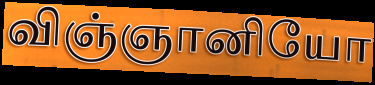
விஞ்ஞானியோ